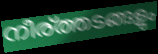
നീര്ത്തടങ്ങളും